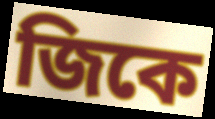
জিকে